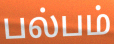
பல்பம்